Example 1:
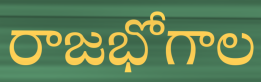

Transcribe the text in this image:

రాజభోగాల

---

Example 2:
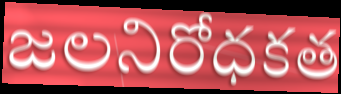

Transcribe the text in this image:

జలనిరోధకత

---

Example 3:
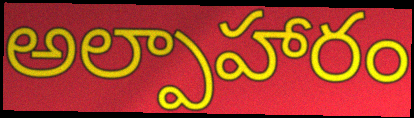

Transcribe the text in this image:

అల్పాహారం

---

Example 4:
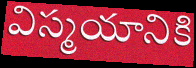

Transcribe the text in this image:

విస్మయానికి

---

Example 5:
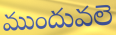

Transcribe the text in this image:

ముందువలె